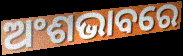
ଅଂଶଭାବରେ